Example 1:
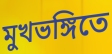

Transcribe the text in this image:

মুখভঙ্গিতে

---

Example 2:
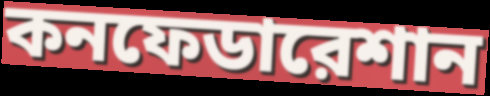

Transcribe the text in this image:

কনফেডারেশান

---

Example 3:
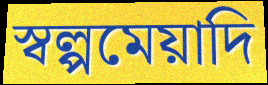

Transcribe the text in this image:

স্বল্পমেয়াদি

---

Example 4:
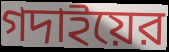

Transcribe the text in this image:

গদাইয়ের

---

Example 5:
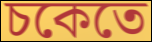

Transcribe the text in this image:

চকেতে